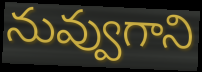
నువ్వుగాని